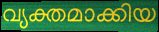
വ്യക്തമാക്കിയ